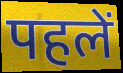
पहलें